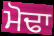
ਮੋਢਾ